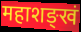
महाशङ्खं